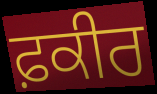
ਫ਼ਕੀਰ